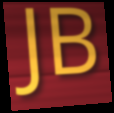
JB